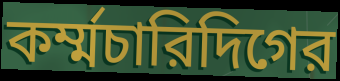
কর্ম্মচারিদিগের